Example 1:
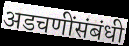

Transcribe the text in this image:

अडचणींसंबंधी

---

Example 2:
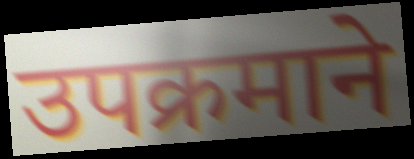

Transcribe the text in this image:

उपक्रमाने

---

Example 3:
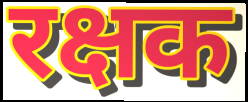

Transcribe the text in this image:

रक्षक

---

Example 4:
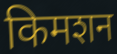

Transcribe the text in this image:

किमशन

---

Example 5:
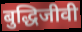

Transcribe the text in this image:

बुद्धिजीवी